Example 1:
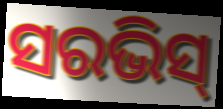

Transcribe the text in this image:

ସରଭିସ୍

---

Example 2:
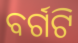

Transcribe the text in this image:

ବର୍ଗଟି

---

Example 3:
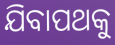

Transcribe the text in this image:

ଯିବାପଥକୁ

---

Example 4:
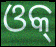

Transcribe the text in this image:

ଓକ୍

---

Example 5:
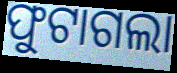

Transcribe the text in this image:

ଫୁଟାଗଲା